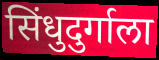
सिंधुदुर्गाला